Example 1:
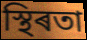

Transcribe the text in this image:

স্থিৰতা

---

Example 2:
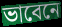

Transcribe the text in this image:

ভাবেনে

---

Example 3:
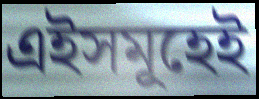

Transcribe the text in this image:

এইসমূহেই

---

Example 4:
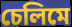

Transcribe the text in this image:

চেলিমে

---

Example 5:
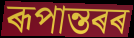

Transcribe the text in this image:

ৰূপান্তৰৰ